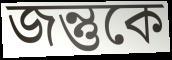
জন্তুকে